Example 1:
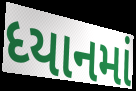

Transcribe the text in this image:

ધ્યાનમાં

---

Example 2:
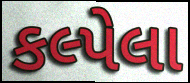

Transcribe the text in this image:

કલ્પેલા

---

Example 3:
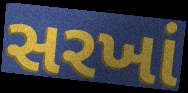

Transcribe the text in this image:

સરખાં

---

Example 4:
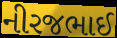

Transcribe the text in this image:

નીરજભાઈ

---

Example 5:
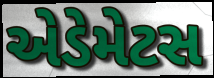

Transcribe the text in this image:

એડેમેટસ